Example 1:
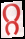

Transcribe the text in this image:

റ്റ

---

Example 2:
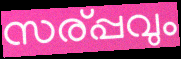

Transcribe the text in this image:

സര്പ്പവും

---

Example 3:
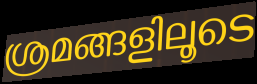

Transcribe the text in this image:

ശ്രമങ്ങളിലൂടെ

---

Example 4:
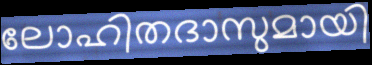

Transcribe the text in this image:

ലോഹിതദാസുമായി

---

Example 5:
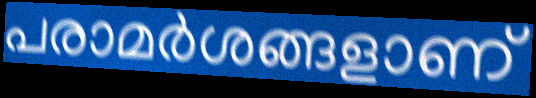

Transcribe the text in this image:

പരാമർശങ്ങളാണ്